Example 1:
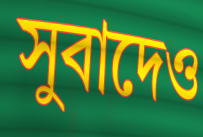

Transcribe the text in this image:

সুবাদেও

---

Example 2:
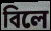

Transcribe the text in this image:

বিলে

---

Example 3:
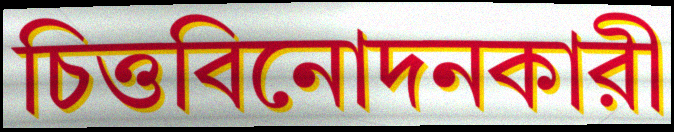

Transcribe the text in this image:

চিত্তবিনোদনকারী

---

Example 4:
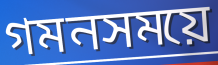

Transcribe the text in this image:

গমনসময়ে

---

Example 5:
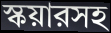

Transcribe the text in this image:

স্কয়ারসহ